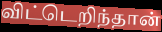
விட்டெறிந்தான்